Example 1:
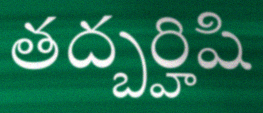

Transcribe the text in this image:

తద్బర్హిషి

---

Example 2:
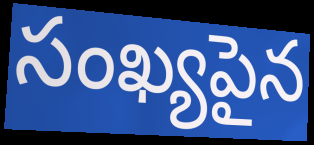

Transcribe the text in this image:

సంఖ్యపైన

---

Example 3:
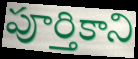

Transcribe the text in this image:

పూర్తికాని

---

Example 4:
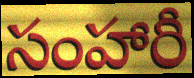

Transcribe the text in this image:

సంహారీ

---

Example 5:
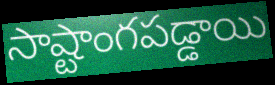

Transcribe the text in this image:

సాష్టాంగపడ్డాయి